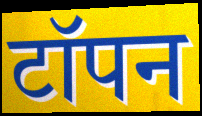
टॉपन